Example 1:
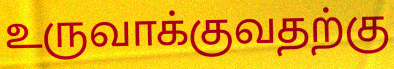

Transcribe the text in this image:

உருவாக்குவதற்கு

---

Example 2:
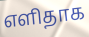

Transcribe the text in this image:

எளிதாக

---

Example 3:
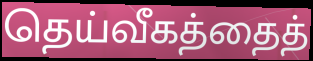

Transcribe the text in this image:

தெய்வீகத்தைத்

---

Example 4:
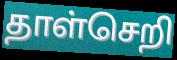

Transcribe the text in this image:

தாள்செறி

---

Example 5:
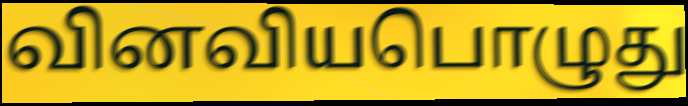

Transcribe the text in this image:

வினவியபொழுது